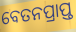
ବେତନପ୍ରାପ୍ତ